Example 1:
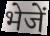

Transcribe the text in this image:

भेजें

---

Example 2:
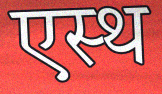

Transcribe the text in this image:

एस्थ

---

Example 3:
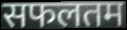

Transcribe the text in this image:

सफलतम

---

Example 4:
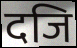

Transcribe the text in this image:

दजि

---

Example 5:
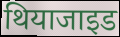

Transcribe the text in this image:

थियाजाइड